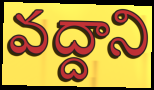
వద్దాని